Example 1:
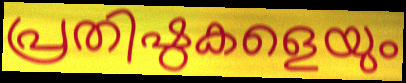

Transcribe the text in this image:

പ്രതിഷ്ഠകളെയും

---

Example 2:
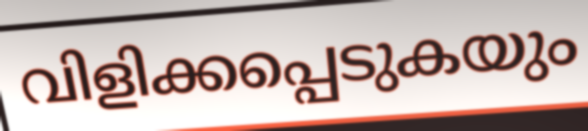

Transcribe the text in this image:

വിളിക്കപ്പെടുകയും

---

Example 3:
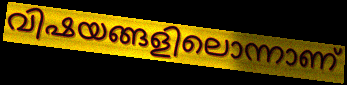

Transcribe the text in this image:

വിഷയങ്ങളിലൊന്നാണ്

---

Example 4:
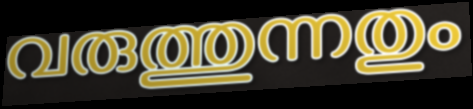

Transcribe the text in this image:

വരുത്തുന്നതും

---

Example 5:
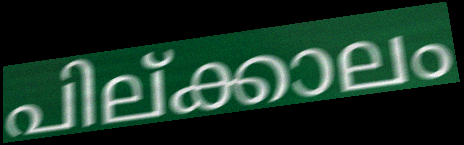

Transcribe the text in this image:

പില്ക്കാലം